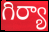
గిర్యా